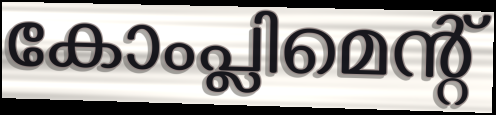
കോംപ്ലിമെന്റ്